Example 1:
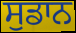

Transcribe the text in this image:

ਸੁਡਾਨ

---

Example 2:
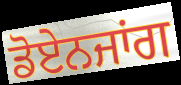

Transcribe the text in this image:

ਡੋਏਨਜਾਂਗ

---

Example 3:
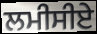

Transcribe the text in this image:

ਲਮੀਸੀਏ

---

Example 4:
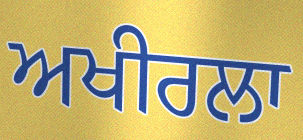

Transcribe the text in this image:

ਅਖੀਰਲਾ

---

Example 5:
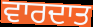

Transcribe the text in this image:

ਵਾਰਦਾਤ